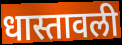
धास्तावली